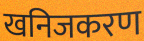
खनिजकरण